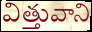
విత్తువాని